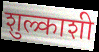
शुल्काशी